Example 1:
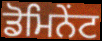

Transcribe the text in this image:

ਡੋਮਿਨੇਂਟ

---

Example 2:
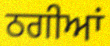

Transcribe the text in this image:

ਠਗੀਆਂ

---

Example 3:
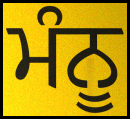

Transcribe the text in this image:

ਮੰਨੂ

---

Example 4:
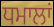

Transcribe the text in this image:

ਧਮਾਲਾਂ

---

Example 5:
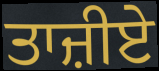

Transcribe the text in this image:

ਤਾਜ਼ੀਏ